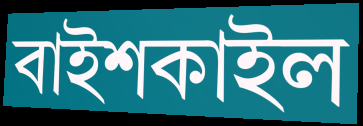
বাইশকাইল